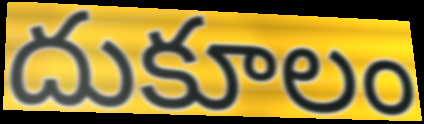
దుకూలం